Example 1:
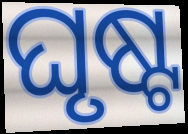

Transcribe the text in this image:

ଘୃଷ୍ଟ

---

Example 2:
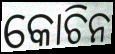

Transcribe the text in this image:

କୋଚିନ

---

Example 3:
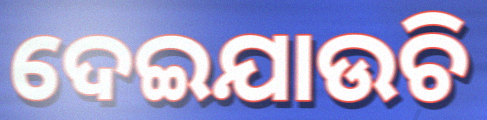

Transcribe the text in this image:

ଦେଇଯାଉଚି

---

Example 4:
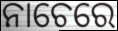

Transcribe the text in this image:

ନାଚେରେ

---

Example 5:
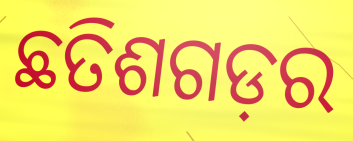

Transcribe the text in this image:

ଛତିଶଗଡ଼ର